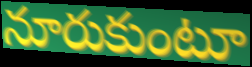
నూరుకుంటూ